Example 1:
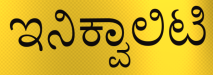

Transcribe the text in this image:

ಇನಿಕ್ವಾಲಿಟಿ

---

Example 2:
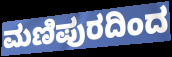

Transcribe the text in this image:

ಮಣಿಪುರದಿಂದ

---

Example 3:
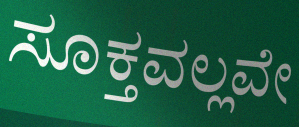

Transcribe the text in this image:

ಸೂಕ್ತವಲ್ಲವೇ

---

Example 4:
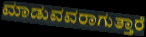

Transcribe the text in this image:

ಮಾಡುವವರಾಗುತ್ತಾರೆ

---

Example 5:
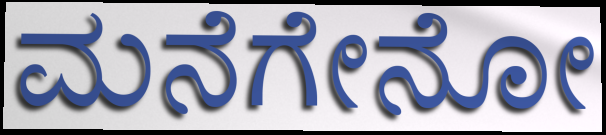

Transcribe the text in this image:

ಮನೆಗೇನೋ